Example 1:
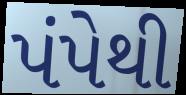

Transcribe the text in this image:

પંપેથી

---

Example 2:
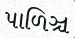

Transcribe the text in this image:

પાળિઞ્ચ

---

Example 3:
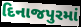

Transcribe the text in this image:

દિનાજપુરમાં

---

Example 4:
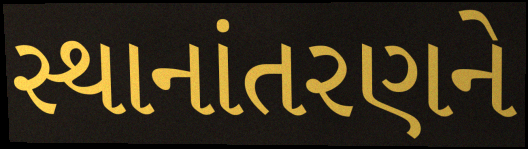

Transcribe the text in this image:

સ્થાનાંતરણને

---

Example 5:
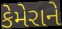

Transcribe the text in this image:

કેમેરાને